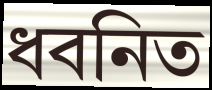
ধবনিত